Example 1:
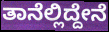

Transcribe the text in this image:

ತಾನೆಲ್ಲಿದ್ದೇನೆ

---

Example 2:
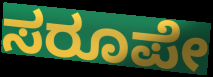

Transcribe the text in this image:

ಸರೂಪೇ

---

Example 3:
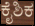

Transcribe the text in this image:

ಕೈಶಿಕ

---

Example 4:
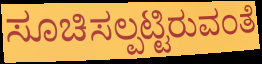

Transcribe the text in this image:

ಸೂಚಿಸಲ್ಪಟ್ಟಿರುವಂತೆ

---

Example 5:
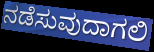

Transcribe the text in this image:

ನಡೆಸುವುದಾಗಲಿ